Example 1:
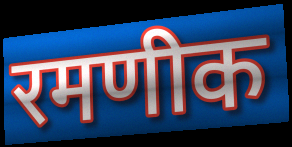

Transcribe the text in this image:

रमणीक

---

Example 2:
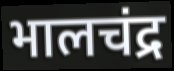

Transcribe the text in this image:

भालचंद्र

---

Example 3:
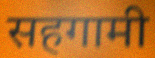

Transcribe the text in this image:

सहगामी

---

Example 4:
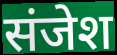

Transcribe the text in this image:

संजेश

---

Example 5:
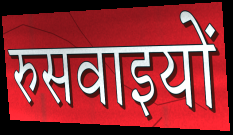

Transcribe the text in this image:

रुसवाइयों